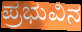
ಪ್ರಭುವಿನ